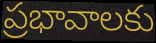
ప్రభావాలకు